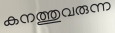
കനത്തുവരുന്ന